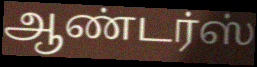
ஆண்டர்ஸ்